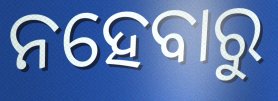
ନହେବାରୁ